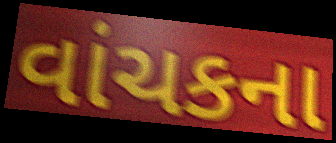
વાંચકના